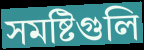
সমষ্টিগুলি